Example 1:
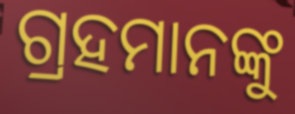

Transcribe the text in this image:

ଗ୍ରହମାନଙ୍କୁ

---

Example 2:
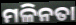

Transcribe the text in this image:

ମଳିନତା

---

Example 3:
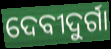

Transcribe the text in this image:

ଦେବୀଦୁର୍ଗା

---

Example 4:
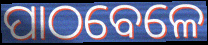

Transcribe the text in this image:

ପାଠବେଳେ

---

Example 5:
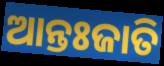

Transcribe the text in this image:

ଆନ୍ତଃଜାତି